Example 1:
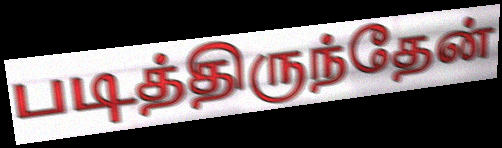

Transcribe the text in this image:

படித்திருந்தேன்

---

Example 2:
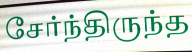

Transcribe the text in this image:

சேர்ந்திருந்த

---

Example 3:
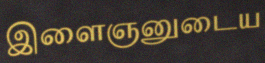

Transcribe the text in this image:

இளைஞனுடைய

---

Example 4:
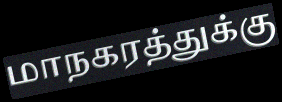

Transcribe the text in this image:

மாநகரத்துக்கு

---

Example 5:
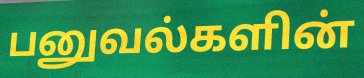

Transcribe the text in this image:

பனுவல்களின்